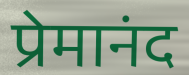
प्रेमानंद